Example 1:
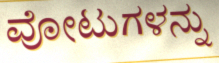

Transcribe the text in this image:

ವೋಟುಗಳನ್ನು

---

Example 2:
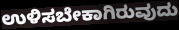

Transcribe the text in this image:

ಉಳಿಸಬೇಕಾಗಿರುವುದು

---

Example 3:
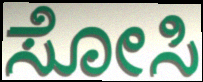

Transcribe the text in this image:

ಸೋಸಿ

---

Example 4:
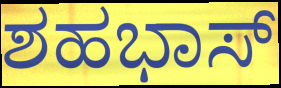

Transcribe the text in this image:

ಶಹಭಾಸ್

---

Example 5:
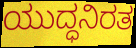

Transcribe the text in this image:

ಯುದ್ಧನಿರತ